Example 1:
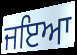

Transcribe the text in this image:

ਜਇਆ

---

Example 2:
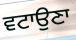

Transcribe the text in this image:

ਵਟਾਉਣਾ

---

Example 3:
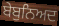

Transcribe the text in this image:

ਬੇਬੁਨਿਅਦ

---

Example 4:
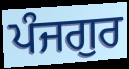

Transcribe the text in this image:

ਪੰਜਗੁਰ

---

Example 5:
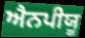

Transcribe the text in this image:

ਐਨਪੀਯੂ